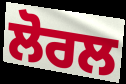
ਲੋਰਲ